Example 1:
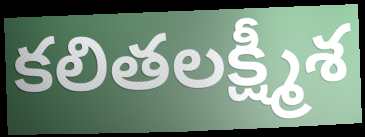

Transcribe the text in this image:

కలితలక్ష్మీశ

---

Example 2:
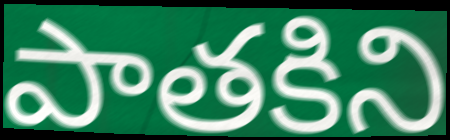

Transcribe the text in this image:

పాతకిని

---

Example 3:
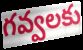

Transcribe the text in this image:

గవ్వలకు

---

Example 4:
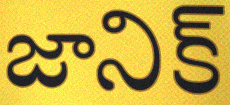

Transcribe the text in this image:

జానిక్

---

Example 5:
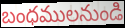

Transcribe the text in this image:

బంధములనుండి